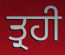
ਤ੍ਰਹੀ